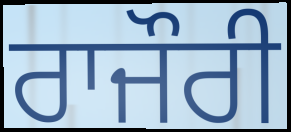
ਰਾਜੌਰੀ